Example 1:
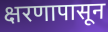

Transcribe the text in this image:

क्षरणापासून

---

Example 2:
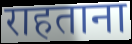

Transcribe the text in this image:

राहताना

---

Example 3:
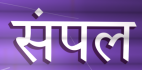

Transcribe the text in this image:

संपल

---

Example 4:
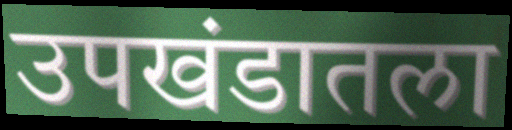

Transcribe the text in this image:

उपखंडातला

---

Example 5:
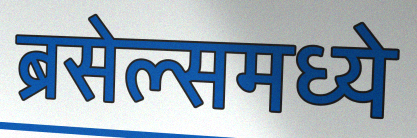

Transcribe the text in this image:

ब्रसेल्समध्ये